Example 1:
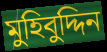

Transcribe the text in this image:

মুহিবুদ্দিন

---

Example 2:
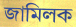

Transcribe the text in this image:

জামিলক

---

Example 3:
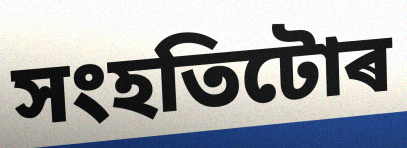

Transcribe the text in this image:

সংহতিটোৰ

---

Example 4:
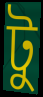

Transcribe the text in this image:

টু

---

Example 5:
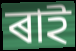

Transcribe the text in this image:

ৰাই